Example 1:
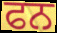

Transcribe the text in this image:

ਫਨ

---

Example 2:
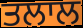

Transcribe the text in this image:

ਤਲਾਲ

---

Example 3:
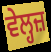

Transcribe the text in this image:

ਵੇਲ੍ਹਜ਼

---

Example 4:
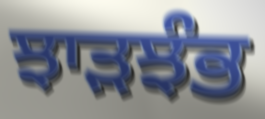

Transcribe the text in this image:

ਝਾੜਝੰਭ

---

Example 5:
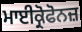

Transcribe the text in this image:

ਮਾਈਕ੍ਰੋਫੋਨਜ਼